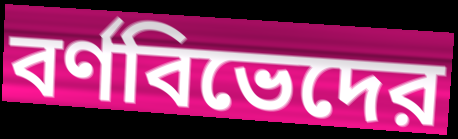
বর্ণবিভেদের